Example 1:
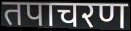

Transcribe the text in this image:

तपाचरण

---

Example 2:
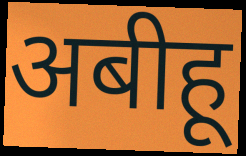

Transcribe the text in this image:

अबीहू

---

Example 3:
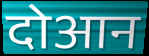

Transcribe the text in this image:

दोआन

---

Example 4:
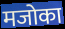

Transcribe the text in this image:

मजोका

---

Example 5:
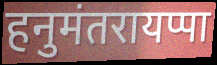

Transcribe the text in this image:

हनुमंतरायप्पा